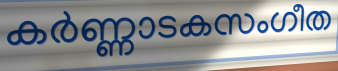
കർണ്ണാടകസംഗീത